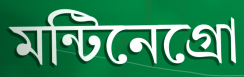
মন্টিনেগ্রো